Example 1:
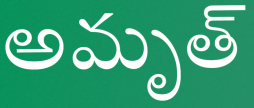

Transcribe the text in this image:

అమృత్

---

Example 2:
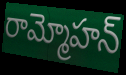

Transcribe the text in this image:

రామ్మోహన్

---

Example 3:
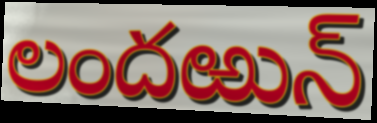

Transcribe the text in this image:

లందఱున్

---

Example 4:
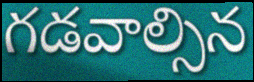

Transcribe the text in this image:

గడవాల్సిన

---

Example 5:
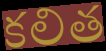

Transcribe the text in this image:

కలిత